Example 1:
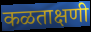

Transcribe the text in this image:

कळताक्षणी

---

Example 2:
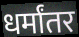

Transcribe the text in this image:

धर्मांतर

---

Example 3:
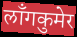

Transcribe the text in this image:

लाँगकुमेर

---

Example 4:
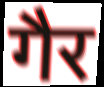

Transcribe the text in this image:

गैर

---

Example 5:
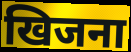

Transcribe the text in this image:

खिजना